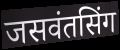
जसवंतसिंग